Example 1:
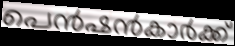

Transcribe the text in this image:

പെൻഷൻകാർക്ക്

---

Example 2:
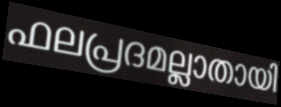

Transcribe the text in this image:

ഫലപ്രദമല്ലാതായി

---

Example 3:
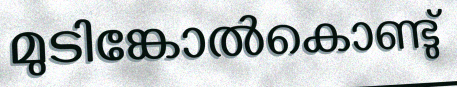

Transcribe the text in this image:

മുടിങ്കോൽകൊണ്ടു്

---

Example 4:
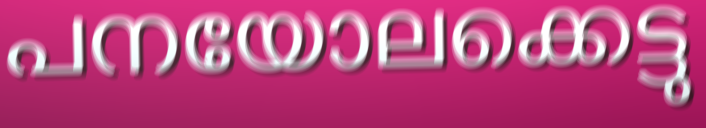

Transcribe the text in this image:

പനയോലക്കെട്ടു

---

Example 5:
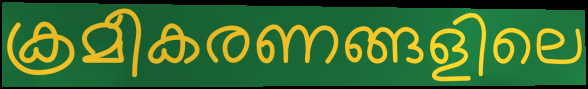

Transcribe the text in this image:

ക്രമീകരണങ്ങളിലെ